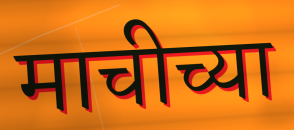
माचीच्या